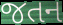
જતન